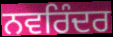
ਨਵਰਿੰਦਰ